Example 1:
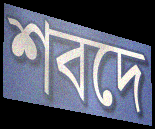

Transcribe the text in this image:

শবদে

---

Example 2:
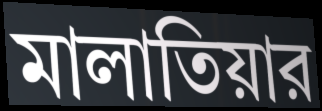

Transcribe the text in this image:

মালাতিয়ার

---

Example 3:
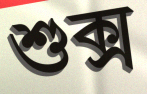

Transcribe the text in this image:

শুক্স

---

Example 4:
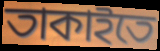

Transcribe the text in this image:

তাকাইতে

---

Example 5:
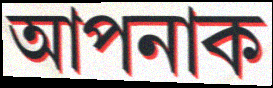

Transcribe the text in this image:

আপনাক